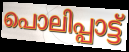
പൊലിപ്പാട്ട്